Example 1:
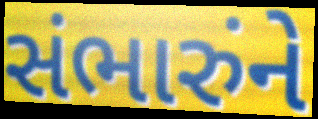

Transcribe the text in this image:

સંભારુંને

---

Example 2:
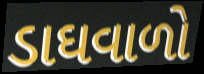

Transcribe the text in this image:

ડાઘવાળો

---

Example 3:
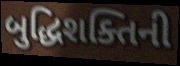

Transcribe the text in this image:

બુદ્ધિશક્તિની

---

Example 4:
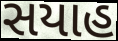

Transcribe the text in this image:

સયાહ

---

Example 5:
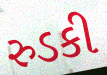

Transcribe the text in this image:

રુડકી